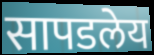
सापडलेय